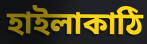
হাইলাকাঠি